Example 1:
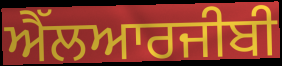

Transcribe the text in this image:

ਐੱਲਆਰਜੀਬੀ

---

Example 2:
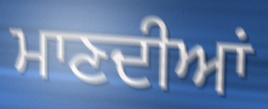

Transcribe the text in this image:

ਮਾਣਦੀਆਂ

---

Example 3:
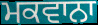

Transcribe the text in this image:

ਮਕਵਾਨਾ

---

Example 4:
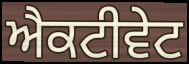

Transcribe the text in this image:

ਐਕਟੀਵੇਟ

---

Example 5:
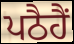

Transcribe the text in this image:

ਪਠੈਹੈਂ